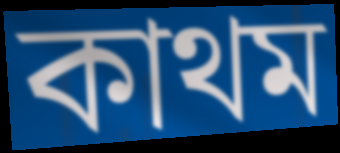
কাথম